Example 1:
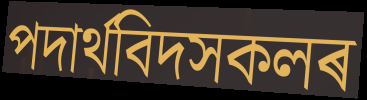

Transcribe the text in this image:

পদাৰ্থবিদসকলৰ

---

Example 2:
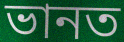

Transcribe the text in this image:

ভানত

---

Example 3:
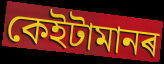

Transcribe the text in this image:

কেইটামানৰ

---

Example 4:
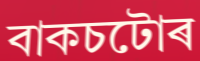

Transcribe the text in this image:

বাকচটোৰ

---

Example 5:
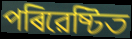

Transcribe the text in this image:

পৰিৱেষ্টিত